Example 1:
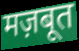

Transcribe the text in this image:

मज़बूत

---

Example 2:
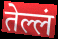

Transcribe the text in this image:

तेल्लं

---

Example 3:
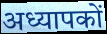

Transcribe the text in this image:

अध्यापकों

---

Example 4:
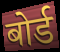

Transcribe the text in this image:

बोर्ड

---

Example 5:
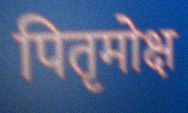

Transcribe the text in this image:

पितृमोक्ष